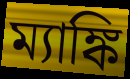
ম্যাঙ্কি